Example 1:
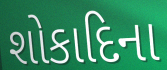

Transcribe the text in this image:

શોકાદિના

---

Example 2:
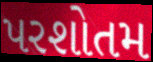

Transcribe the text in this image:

પરશોતમ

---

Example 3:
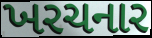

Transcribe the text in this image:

ખરચનાર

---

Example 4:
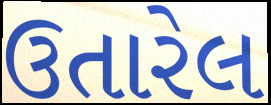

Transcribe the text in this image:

ઉતારેલ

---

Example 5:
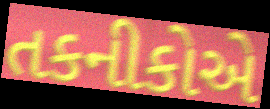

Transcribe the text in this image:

તકનીકોએ